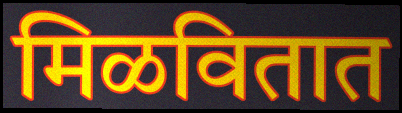
मिळवितात